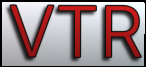
VTR